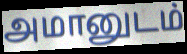
அமானுடம்